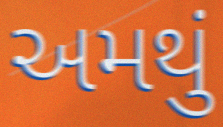
અમથું